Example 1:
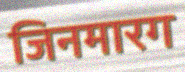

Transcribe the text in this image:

जिनमारग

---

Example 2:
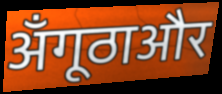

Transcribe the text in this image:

अँगूठाऔर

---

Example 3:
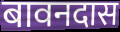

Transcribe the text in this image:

बावनदास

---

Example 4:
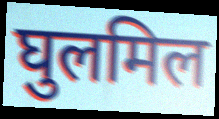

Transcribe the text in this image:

घुलमिल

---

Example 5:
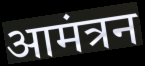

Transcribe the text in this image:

आमंत्रन